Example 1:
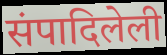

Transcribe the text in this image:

संपादिलेली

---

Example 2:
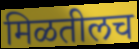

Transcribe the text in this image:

मिळतीलच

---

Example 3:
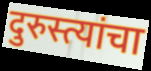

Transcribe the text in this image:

दुरुस्त्यांचा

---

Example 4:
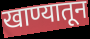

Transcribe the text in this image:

खाण्यातून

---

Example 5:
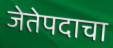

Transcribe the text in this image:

जेतेपदाचा